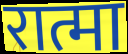
रात्मा